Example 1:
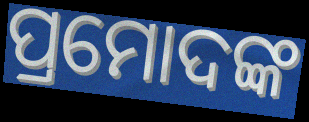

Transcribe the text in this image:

ପ୍ରମୋଦଙ୍କ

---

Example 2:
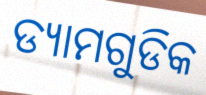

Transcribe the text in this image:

ଡ୍ୟାମଗୁଡିକ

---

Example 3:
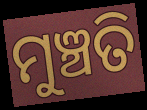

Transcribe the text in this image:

ମୁଞ୍ଚତି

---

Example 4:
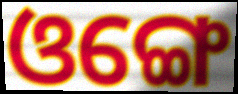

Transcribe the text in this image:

ଓଙ୍ଗେ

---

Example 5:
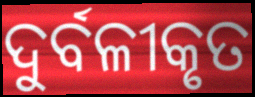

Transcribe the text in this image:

ଦୁର୍ବଳୀକୃତ